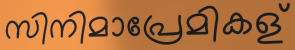
സിനിമാപ്രേമികള്